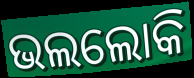
ଭଲଲୋକି